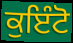
ਕੁਇੰਟੋ